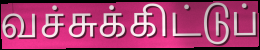
வச்சுக்கிட்டுப்